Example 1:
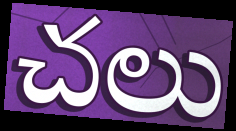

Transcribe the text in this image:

చలు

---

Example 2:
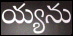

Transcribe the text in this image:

య్యను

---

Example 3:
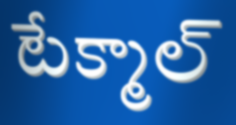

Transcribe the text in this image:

టేక్మాల్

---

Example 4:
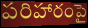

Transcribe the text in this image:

పరిహారంపై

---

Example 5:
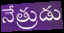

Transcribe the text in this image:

నేత్రుడు